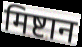
मिष्टान